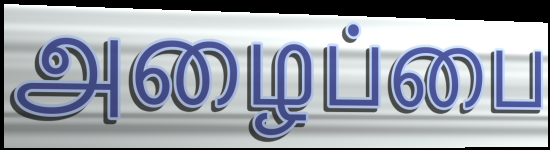
அழைப்பை